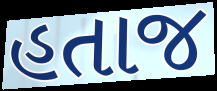
હતાજ